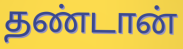
தண்டான்